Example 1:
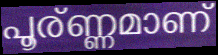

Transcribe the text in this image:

പൂര്ണ്ണമാണ്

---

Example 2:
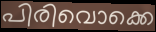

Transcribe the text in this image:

പിരിവൊക്കെ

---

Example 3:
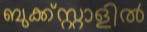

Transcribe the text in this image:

ബുക്ക്സ്റ്റാളിൽ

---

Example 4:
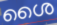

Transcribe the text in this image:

ശൈ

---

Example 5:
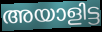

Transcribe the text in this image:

അയാളിട്ട